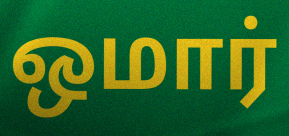
ஒமார்